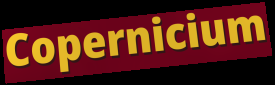
Copernicium